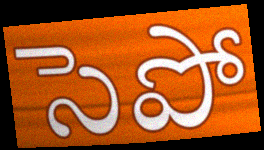
సెపో